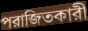
পরাজিতকারী